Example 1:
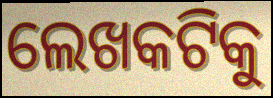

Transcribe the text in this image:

ଲେଖକଟିକୁ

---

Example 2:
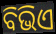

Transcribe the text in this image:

ବିଭିଏ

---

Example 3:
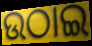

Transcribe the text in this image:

ଉଠାଇ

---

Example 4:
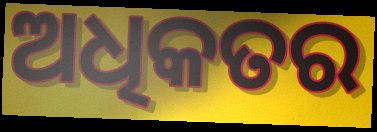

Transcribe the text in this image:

ଅଧିକତର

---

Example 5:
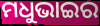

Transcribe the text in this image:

ମଧୁଭାଇର